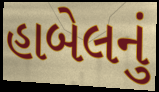
હાબેલનું